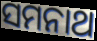
ସମନାଥ